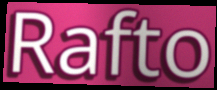
Rafto